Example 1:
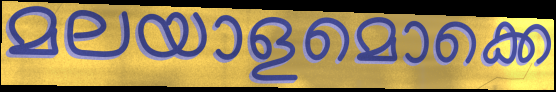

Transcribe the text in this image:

മലയാളമൊക്കെ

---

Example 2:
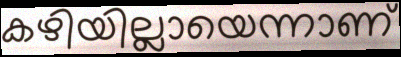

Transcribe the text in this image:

കഴിയില്ലായെന്നാണ്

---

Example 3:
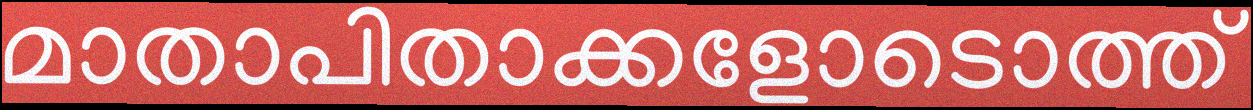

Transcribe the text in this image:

മാതാപിതാക്കളോടൊത്ത്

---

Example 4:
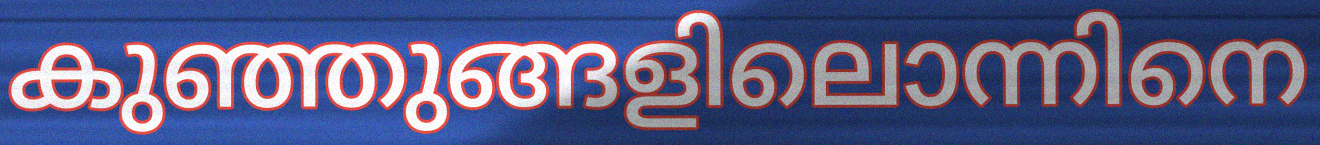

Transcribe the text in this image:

കുഞ്ഞുങ്ങളിലൊന്നിനെ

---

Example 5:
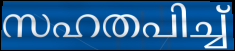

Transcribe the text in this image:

സഹതപിച്ച്